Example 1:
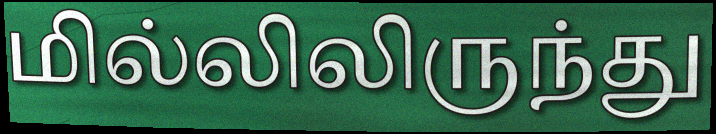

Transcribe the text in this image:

மில்லிலிருந்து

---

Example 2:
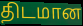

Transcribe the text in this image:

திடமான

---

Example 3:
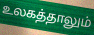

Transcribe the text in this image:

உலகத்தாலும்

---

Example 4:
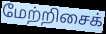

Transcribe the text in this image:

மேற்றிசைக்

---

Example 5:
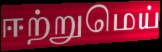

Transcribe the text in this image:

ஈற்றுமெய்